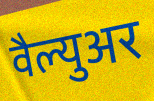
वैल्युअर